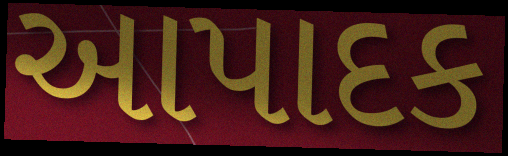
આપાદક